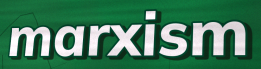
marxism